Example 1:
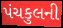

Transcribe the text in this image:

પંચકુલની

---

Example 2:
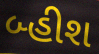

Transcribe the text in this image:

બ્હીશ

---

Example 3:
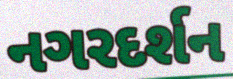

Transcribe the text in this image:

નગરદર્શન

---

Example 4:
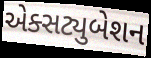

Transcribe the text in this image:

એક્સટ્યુબેશન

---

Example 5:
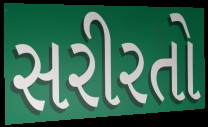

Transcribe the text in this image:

સરીરતો